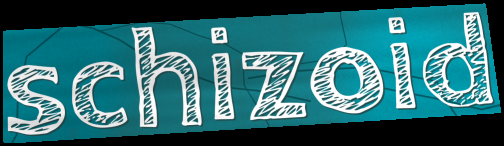
schizoid